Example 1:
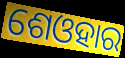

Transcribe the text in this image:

ଶେଓହାର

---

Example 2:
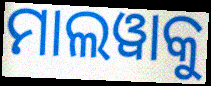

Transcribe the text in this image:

ମାଲୱାକୁ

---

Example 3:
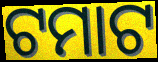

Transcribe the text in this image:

ଟମାଟ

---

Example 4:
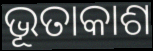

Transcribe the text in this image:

ଭୂତାକାଶ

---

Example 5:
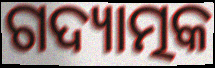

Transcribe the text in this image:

ଗଦ୍ୟାତ୍ମକ